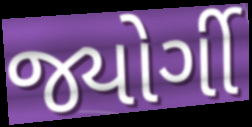
જ્યોર્ગી